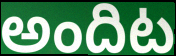
అందిట